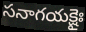
సనాగయక్షైః